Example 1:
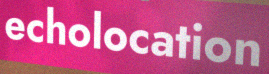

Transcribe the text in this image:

echolocation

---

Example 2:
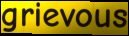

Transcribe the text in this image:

grievous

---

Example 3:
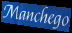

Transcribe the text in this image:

Manchego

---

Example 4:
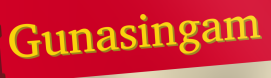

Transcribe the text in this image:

Gunasingam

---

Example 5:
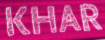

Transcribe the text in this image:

KHAR